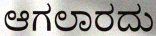
ಆಗಲಾರದು